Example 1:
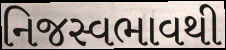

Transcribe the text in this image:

નિજસ્વભાવથી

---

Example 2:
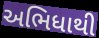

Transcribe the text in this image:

અભિધાથી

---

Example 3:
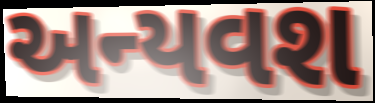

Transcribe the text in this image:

અન્યવશ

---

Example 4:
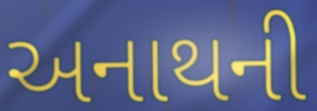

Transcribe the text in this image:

અનાથની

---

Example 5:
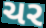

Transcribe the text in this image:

ચર